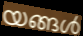
യങ്ങൾ